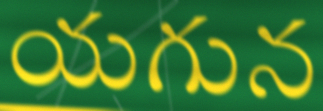
యగున